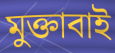
মুক্তাবাই